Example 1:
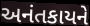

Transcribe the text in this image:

અનંતકાયને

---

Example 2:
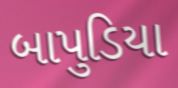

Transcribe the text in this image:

બાપુડિયા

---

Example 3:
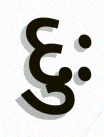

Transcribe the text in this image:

દુઃ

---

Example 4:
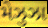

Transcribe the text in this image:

મેઝુઝા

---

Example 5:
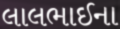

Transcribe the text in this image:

લાલભાઈના